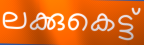
ലക്കുകെട്ട്